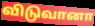
விடுவானா